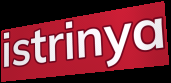
istrinya